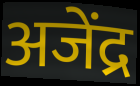
अजेंद्र